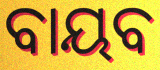
ବାୟବ